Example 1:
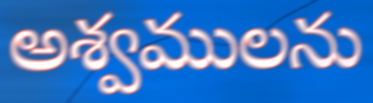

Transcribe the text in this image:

అశ్వములను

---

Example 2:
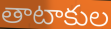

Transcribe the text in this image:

తాటాకుల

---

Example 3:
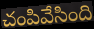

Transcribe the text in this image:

చంపివేసింది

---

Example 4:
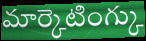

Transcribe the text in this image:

మార్కెటింగ్కు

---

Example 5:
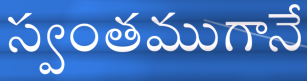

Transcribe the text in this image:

స్వంతముగానే